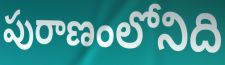
పురాణంలోనిది